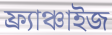
ফ্র্যাঞ্চাইজ